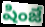
షింజే